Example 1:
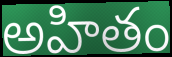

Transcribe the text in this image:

అహితం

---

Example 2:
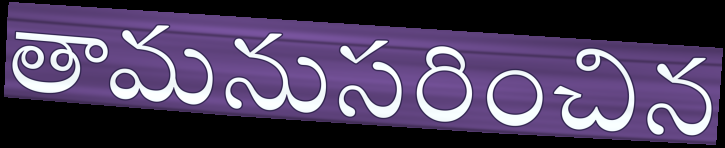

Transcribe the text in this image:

తామనుసరించిన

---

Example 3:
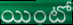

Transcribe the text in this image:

యింటో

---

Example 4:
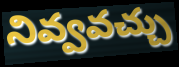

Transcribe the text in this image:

నివ్వవచ్చు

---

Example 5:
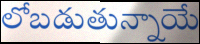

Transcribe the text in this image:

లోబడుతున్నాయే